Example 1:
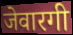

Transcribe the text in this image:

जेवारगी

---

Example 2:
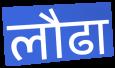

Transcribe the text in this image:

लौढा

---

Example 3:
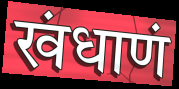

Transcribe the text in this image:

खंधाणं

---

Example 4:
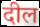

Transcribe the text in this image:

दील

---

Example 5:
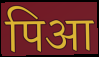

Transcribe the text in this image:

पिआ